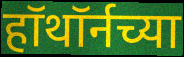
हॉथॉर्नच्या